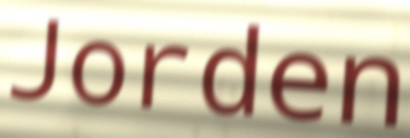
Jorden